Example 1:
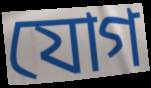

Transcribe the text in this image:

যোগ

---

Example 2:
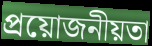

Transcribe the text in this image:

প্ৰয়োজনীয়তা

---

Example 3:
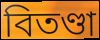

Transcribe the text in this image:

বিতণ্ডা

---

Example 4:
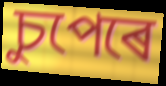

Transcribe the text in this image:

চুপেৰে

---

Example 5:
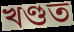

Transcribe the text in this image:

খণ্ডত